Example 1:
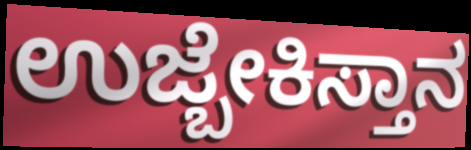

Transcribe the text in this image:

ಉಜ್ಬೇಕಿಸ್ತಾನ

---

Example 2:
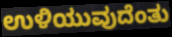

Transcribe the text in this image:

ಉಳಿಯುವುದೆಂತು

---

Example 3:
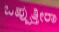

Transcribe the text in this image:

ಒಪ್ಪುತ್ತೀರಾ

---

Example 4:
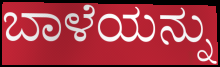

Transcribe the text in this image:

ಬಾಳೆಯನ್ನು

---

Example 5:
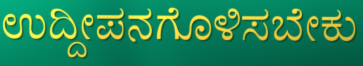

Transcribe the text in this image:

ಉದ್ದೀಪನಗೊಳಿಸಬೇಕು